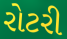
રોટરી